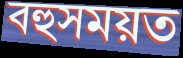
বহুসময়ত